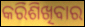
କରିଶିଖିବାର